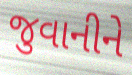
જુવાનીને